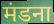
मंडना